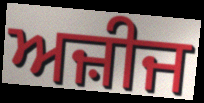
ਅਜ਼ੀਜ